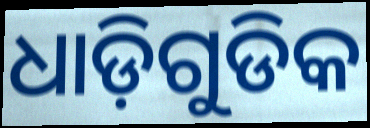
ଧାଡ଼ିଗୁଡିକ